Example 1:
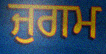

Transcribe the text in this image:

ਜੁਗਮ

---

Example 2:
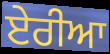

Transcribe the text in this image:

ਏਰੀਆ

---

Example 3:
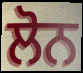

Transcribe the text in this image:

ਲੋਨ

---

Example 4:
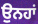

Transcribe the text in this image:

ਉਨਹਾਂ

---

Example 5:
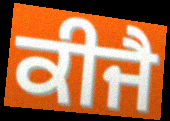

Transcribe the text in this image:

ਕੀਜੈ